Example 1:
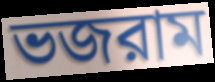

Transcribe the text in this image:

ভজরাম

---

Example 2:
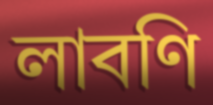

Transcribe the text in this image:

লাবণি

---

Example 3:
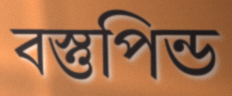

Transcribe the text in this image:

বস্তুপিন্ড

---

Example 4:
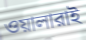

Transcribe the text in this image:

ওয়ালারাই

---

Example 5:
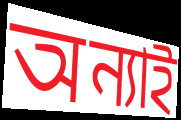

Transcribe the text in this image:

অন্যাই